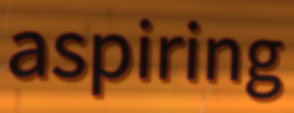
aspiring